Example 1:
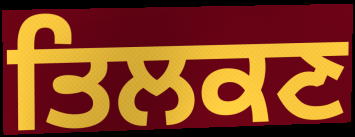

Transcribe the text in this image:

ਤਿਲਕਣ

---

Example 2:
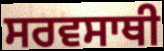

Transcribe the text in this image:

ਸਰਵਸਾਥੀ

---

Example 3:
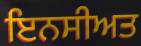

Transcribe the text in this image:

ਇਨਸੀਅਤ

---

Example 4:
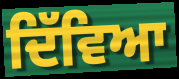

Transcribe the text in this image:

ਦਿੱਵਿਆ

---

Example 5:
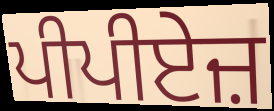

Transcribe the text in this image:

ਪੀਪੀਏਜ਼